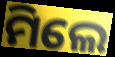
ମିଲେ